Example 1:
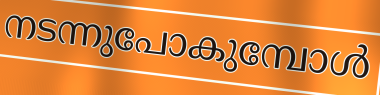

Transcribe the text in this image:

നടന്നുപോകുമ്പോൾ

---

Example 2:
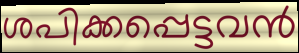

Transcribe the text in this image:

ശപിക്കപ്പെട്ടവൻ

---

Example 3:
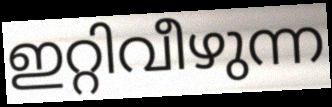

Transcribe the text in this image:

ഇറ്റിവീഴുന്ന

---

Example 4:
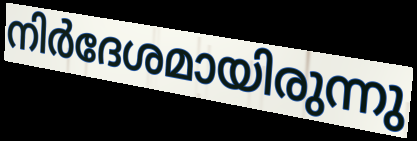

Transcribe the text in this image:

നിർദേശമായിരുന്നു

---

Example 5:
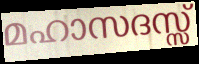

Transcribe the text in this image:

മഹാസദസ്സ്